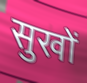
सुखों